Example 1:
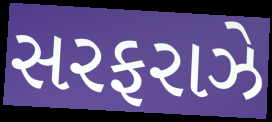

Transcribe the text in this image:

સરફરાઝે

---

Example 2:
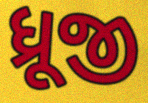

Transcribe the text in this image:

ધ્રૂજી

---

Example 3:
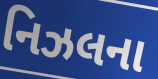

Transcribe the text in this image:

નિઝલના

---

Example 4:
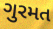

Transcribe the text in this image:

ગુરમત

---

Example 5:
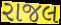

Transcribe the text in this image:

રાજલ